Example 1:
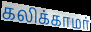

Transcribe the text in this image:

கலிக்காமர்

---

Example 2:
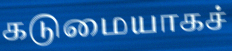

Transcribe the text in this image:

கடுமையாகச்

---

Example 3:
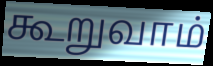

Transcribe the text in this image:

கூறுவாம்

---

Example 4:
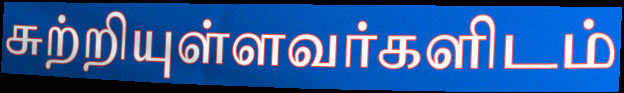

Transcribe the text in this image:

சுற்றியுள்ளவர்களிடம்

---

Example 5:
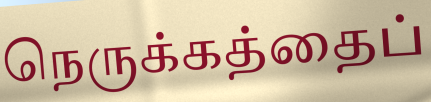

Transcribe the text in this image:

நெருக்கத்தைப்